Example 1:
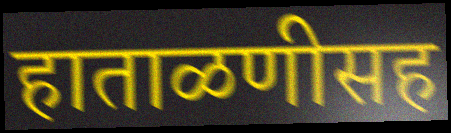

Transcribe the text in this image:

हाताळणीसह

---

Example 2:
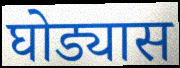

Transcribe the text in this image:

घोड्यास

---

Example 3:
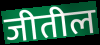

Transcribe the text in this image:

जीतील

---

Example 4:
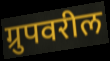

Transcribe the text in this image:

ग्रुपवरील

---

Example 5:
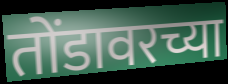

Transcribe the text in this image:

तोंडावरच्या